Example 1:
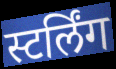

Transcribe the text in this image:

स्टर्लिंग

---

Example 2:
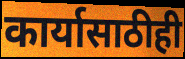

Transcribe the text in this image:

कार्यासाठीही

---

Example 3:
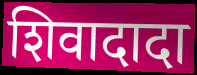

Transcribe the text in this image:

शिवादादा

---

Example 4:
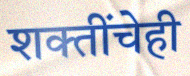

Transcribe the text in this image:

शक्तींचेही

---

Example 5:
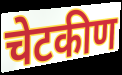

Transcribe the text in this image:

चेटकीण